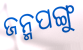
ଜନ୍ମପଙ୍ଗୁ